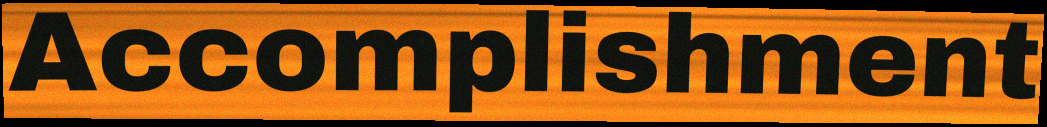
Accomplishment